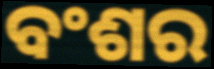
ବଂଶର